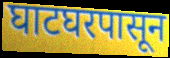
घाटघरपासून